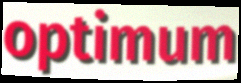
optimum